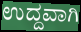
ಉದ್ದವಾಗಿ